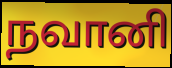
நவானி